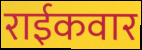
राईकवार